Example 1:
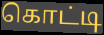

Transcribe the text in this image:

கொட்டி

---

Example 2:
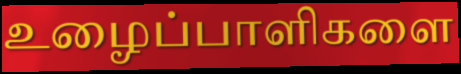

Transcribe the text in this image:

உழைப்பாளிகளை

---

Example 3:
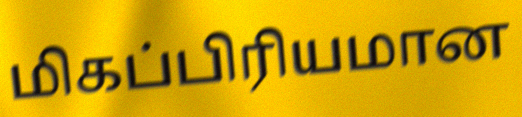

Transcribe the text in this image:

மிகப்பிரியமான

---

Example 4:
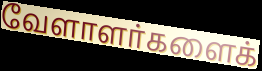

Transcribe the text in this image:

வேளாளர்களைக்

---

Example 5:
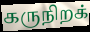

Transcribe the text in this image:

கருநிறக்